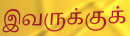
இவருக்குக்